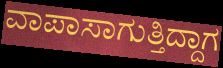
ವಾಪಾಸಾಗುತ್ತಿದ್ದಾಗ